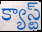
క్యాస్ట్